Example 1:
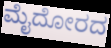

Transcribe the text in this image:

ಮೈದೋರದ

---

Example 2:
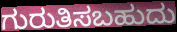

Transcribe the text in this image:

ಗುರುತಿಸಬಹುದು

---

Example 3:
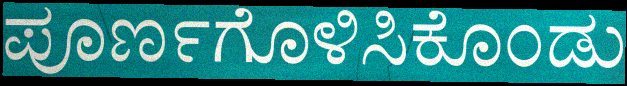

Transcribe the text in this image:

ಪೂರ್ಣಗೊಳಿಸಿಕೊಂಡು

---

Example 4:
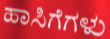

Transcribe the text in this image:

ಹಾಸಿಗೆಗಳು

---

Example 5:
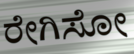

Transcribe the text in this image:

ರೇಗಿಸೋ